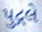
પુદ્ગલે